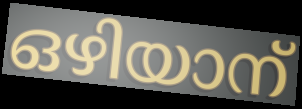
ഒഴിയാന്